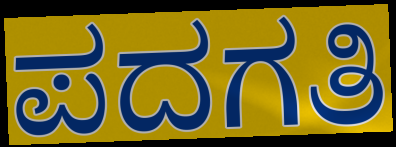
ಪದಗತಿ